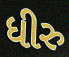
ધીરુ